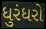
ધુરંધરો